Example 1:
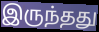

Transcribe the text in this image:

இருந்தது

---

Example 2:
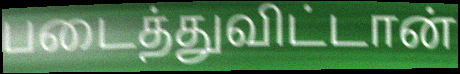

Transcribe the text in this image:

படைத்துவிட்டான்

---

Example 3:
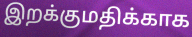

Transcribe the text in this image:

இறக்குமதிக்காக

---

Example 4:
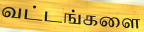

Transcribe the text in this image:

வட்டங்களை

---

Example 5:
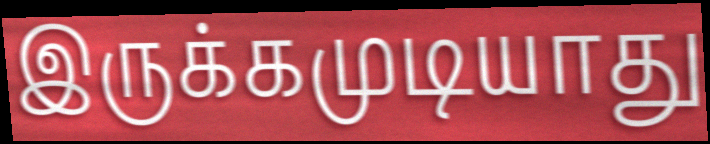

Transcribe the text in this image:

இருக்கமுடியாது